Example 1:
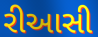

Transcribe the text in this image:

રીઆસી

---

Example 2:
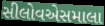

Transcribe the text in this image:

સીલોવએસમાલા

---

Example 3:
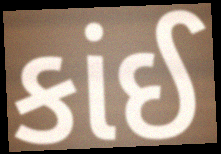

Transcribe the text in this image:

કાંઈ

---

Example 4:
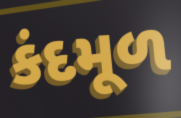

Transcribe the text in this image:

કંદમૂળ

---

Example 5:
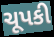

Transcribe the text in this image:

ચૂપકી